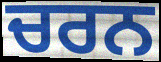
ਚਰਨ